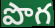
పొగ